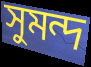
সুমন্দ